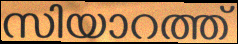
സിയാറത്ത്